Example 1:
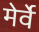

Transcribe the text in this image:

मेर्वे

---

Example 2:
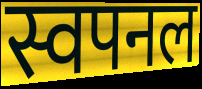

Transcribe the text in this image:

स्वपनल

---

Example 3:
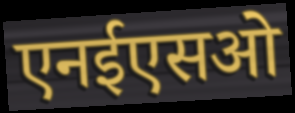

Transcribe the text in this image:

एनईएसओ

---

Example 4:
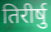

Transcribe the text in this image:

तिरीर्षु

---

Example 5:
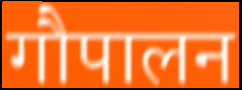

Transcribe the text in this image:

गौपालन